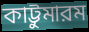
কাট্টুমারম